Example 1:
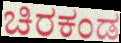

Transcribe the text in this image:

ಚಿರಕಂಡ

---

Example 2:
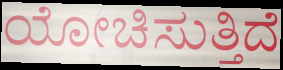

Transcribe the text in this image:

ಯೋಚಿಸುತ್ತಿದೆ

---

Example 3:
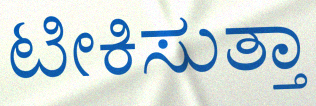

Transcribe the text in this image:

ಟೀಕಿಸುತ್ತಾ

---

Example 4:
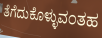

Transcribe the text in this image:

ತೆಗೆದುಕೊಳ್ಳುವಂತಹ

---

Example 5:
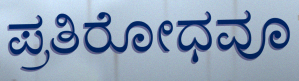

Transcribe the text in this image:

ಪ್ರತಿರೋಧವೂ